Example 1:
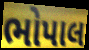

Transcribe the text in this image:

ભોપાલ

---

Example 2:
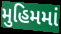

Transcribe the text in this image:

મુહિમમાં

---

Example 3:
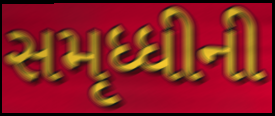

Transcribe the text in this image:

સમૃધ્ધીની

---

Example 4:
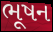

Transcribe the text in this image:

ભૂષન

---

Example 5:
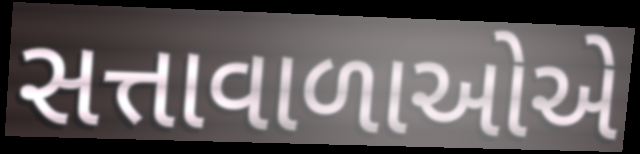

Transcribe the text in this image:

સત્તાવાળાઓએ